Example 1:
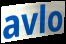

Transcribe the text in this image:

avlo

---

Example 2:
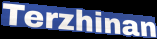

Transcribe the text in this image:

Terzhinan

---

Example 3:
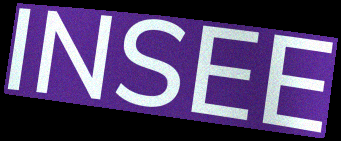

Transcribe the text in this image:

INSEE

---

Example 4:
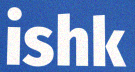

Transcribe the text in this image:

ishk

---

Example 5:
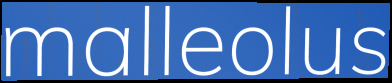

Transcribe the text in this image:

malleolus